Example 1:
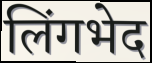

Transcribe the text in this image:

लिंगभेद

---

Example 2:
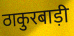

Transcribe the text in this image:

ठाकुरबाड़ी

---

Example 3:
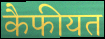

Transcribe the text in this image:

कैफीयत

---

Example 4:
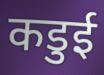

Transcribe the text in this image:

कडुई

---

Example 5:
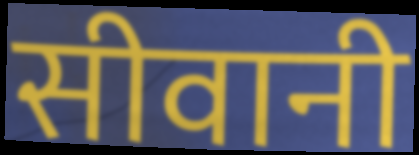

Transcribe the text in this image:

सीवानी